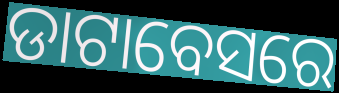
ଡାଟାବେସରେ